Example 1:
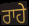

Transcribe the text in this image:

ਰਾਹੇ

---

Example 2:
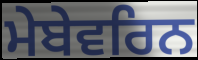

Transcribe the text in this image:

ਮੇਬੇਵਰਿਨ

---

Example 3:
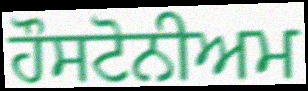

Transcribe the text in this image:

ਹੌਸਟੋਨੀਅਮ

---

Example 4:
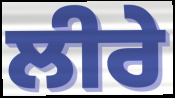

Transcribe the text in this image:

ਲੀਰੇ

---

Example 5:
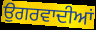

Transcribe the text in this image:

ਉਗਰਵਾਦੀਆਂ